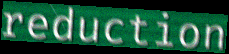
reduction